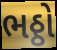
ભઠ્ઠો